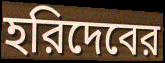
হরিদেবের